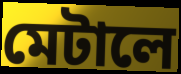
মেটালে